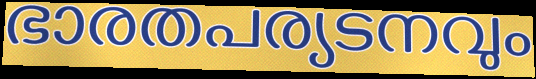
ഭാരതപര്യടനവും